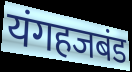
यंगहजबंड